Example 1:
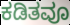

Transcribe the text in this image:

ಕಡಿತವೂ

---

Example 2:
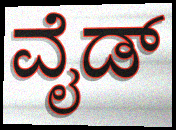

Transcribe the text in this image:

ವೈಡ್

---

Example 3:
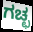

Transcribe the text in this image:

ಗಚ್ಛ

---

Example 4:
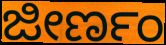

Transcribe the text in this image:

ಜೀರ್ಣಂ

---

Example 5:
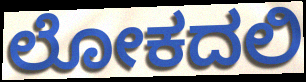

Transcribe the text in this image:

ಲೋಕದಲಿ